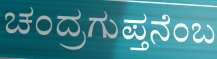
ಚಂದ್ರಗುಪ್ತನೆಂಬ